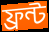
ফ্ৰন্ট